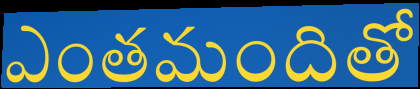
ఎంతమందితో